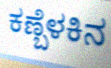
ಕಣ್ಬೆಳಕಿನ